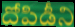
దోపిడీని